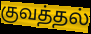
குவத்தல்